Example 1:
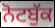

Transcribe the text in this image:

ਨੋਟਬੁੱਕ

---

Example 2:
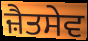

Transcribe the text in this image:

ਜ਼ੈਤਸੇਵ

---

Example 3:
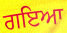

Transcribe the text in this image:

ਗਇਆ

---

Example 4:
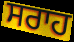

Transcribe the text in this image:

ਸਰਾਹ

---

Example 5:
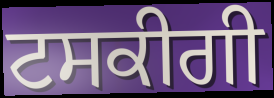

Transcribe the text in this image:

ਟਸਕੀਗੀ